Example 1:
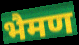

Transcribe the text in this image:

भैमण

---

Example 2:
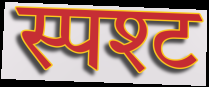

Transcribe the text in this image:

स्पश्ट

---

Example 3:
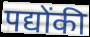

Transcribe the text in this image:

पद्योंकी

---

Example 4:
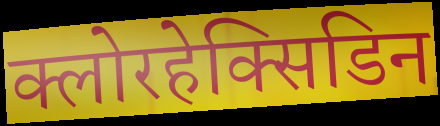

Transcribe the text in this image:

क्लोरहेक्सिडिन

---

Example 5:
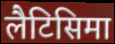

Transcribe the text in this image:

लैटिसिमा